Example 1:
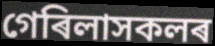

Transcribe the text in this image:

গেৰিলাসকলৰ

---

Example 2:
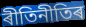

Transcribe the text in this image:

ৰীতিনীতিৰ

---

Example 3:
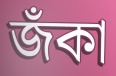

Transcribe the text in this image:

জঁকা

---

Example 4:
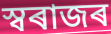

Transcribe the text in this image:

স্বৰাজৰ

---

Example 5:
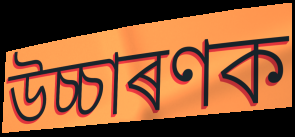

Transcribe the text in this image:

উচ্চাৰণক